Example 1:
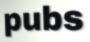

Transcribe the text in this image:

pubs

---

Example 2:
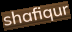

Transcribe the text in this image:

shafiqur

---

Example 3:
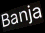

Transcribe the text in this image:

Banja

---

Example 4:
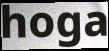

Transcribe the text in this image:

hoga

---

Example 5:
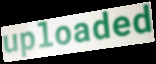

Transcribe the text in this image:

uploaded